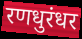
रणधुरंधर